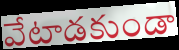
వేటాడకుండా